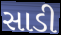
સાડી